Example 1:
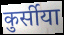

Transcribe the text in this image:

कुर्सीया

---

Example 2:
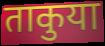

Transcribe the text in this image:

ताकुया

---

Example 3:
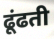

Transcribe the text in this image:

ढूंढती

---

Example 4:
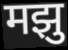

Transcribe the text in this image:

मझु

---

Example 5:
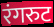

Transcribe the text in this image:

रंगरुट